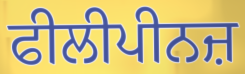
ਫੀਲੀਪੀਨਜ਼